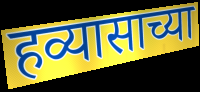
हव्यासाच्या